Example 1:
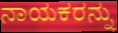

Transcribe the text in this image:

ನಾಯಕರನ್ನು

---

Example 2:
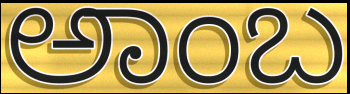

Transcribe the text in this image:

ಅಾಂಬ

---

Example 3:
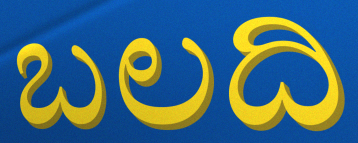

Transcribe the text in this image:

ಬಲದಿ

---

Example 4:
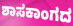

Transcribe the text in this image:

ಶಾಸಕಾಂಗದ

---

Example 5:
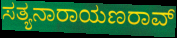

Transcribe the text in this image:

ಸತ್ಯನಾರಾಯಣರಾವ್